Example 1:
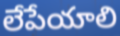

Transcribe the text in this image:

లేపేయాలి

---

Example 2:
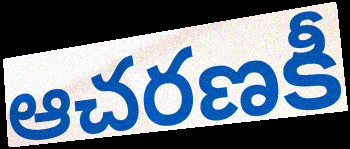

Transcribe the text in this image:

ఆచరణకీ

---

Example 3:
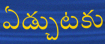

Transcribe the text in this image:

ఏడ్చుటకు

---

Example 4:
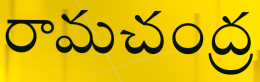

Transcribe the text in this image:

రామచంద్ర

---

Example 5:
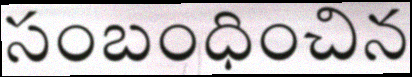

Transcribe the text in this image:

సంబంధించిన